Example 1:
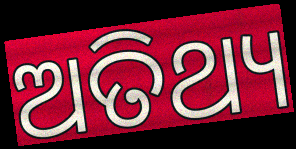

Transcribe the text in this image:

ଅତିଥ୍ୟ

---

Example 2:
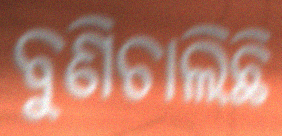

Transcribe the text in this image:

ବୁଣିଚାଲିଛି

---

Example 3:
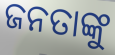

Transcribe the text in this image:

ଜନତାଙ୍କୁ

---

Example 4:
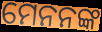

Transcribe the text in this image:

ମେନନଙ୍କ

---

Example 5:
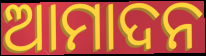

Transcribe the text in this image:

ଆମାଦନ